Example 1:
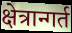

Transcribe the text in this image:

क्षेत्रान्गर्त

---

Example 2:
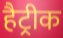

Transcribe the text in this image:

हैट्रीक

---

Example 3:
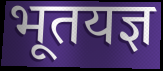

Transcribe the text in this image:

भूतयज्ञ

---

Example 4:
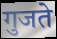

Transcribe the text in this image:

गुजते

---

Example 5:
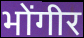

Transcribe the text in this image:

भोंगीर